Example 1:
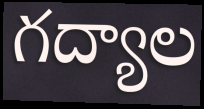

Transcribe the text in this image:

గద్యాల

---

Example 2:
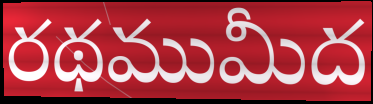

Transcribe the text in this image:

రథముమీద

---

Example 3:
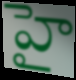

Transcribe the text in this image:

హై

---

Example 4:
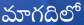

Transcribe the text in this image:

మాగదిలో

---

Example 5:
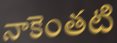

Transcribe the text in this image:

నాకెంతటి